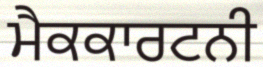
ਮੈਕਕਾਰਟਨੀ